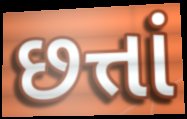
છત્તાં